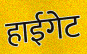
हाईगेट